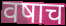
वषाच